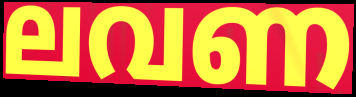
ലവണ